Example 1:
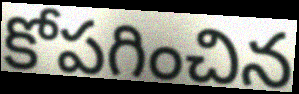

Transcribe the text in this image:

కోపగించిన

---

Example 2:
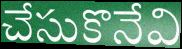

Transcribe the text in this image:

చేసుకొనేవి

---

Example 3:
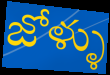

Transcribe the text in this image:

జోళ్ళు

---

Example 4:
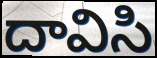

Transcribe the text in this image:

దావిసి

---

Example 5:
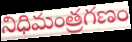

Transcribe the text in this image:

నిధిమంత్రగణం